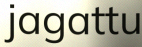
jagattu